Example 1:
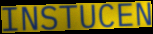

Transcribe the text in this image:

INSTUCEN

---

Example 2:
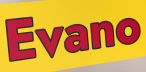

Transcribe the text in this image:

Evano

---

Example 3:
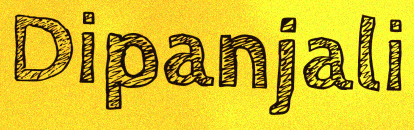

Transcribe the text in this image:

Dipanjali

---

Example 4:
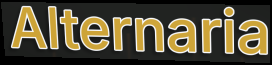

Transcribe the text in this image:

Alternaria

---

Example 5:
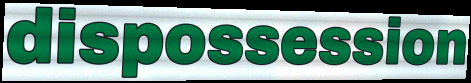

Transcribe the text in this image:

dispossession